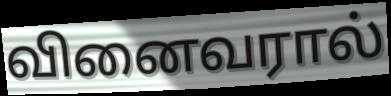
வினைவரால்